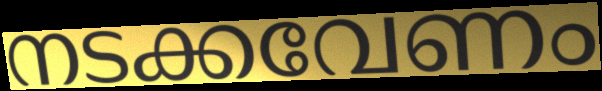
നടക്കവേണം